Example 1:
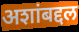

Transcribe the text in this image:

अशांबद्दल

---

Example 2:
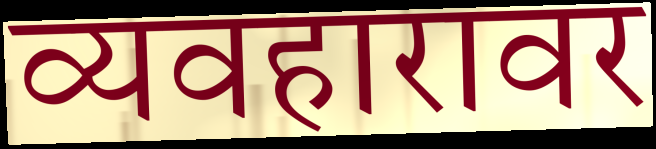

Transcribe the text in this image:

व्यवहारावर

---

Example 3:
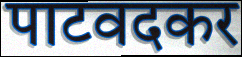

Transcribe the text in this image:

पाटवदकर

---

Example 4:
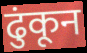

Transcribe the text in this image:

ढुंकून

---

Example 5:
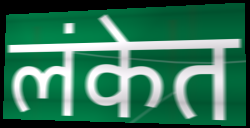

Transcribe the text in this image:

लंकेत